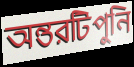
অন্তরটিপুনি